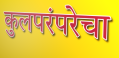
कुलपरंपरेचा